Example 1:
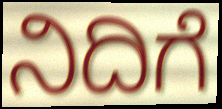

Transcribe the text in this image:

ನಿದಿಗೆ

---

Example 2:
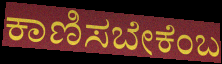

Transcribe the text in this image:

ಕಾಣಿಸಬೇಕೆಂಬ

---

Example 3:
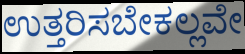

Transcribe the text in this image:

ಉತ್ತರಿಸಬೇಕಲ್ಲವೇ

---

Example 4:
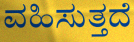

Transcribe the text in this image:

ವಹಿಸುತ್ತದೆ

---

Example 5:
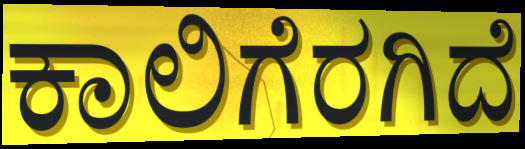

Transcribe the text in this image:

ಕಾಲಿಗೆರಗಿದೆ